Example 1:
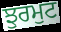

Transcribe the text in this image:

ਝੁਰਮੁਟ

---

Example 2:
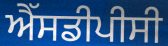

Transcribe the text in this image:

ਐੱਸਡੀਪੀਸੀ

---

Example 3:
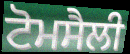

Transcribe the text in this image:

ਟੋਮਸੈਲੀ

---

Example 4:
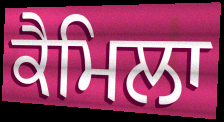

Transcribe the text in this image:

ਕੈਮਿਲਾ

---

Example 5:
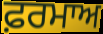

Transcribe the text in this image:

ਫ਼ਰਮਾਅ